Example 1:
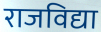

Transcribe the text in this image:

राजविद्या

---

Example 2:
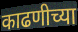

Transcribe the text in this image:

काढणीच्या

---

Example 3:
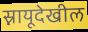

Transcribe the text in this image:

स्नायूदेखील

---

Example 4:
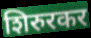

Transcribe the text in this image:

शिरुरकर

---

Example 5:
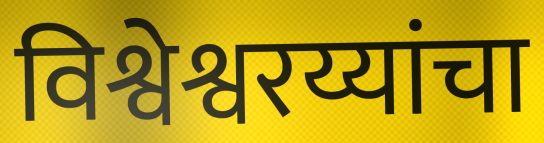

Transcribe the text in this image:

विश्वेश्वरय्यांचा